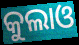
କୁଲାଓ